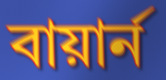
বায়ার্ন